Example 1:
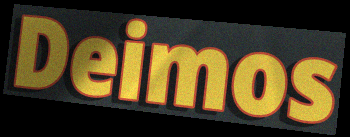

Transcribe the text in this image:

Deimos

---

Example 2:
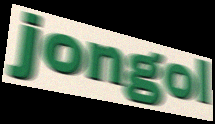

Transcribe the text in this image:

jongol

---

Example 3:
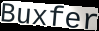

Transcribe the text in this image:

Buxfer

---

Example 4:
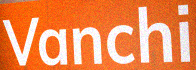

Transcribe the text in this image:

Vanchi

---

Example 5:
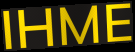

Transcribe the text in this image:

IHME